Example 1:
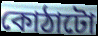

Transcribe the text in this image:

কোঠাটো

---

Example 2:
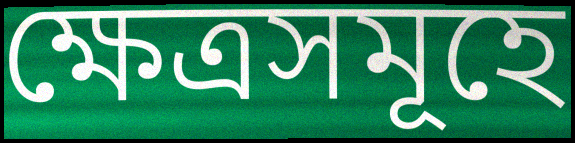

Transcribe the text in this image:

ক্ষেত্ৰসমূহে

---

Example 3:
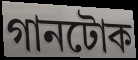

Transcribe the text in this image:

গানটোক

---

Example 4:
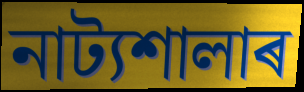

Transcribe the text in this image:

নাট্যশালাৰ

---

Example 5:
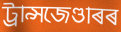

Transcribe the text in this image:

ট্ৰান্সজেণ্ডাৰৰ